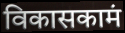
विकासकामं